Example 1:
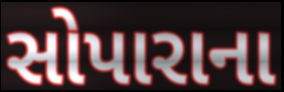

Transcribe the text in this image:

સોપારાના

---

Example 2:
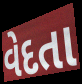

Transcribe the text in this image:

વેદતા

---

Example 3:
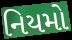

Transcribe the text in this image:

નિયમો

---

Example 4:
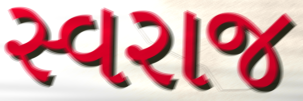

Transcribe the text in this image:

સ્વરાજ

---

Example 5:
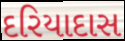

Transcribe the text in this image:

દરિયાદાસ